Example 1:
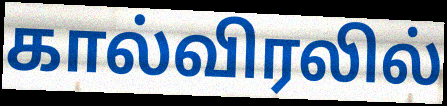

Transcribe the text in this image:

கால்விரலில்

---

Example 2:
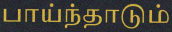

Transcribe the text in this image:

பாய்ந்தாடும்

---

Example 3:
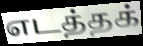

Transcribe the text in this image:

எடத்தக்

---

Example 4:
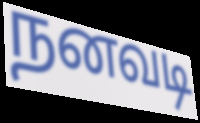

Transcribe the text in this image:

நனவடி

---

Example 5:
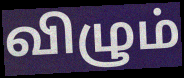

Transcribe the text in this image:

விழும்